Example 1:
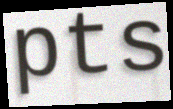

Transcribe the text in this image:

pts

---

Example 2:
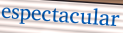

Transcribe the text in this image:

espectacular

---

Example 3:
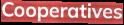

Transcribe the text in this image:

Cooperatives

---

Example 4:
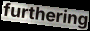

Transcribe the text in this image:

furthering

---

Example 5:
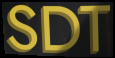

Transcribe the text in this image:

SDT